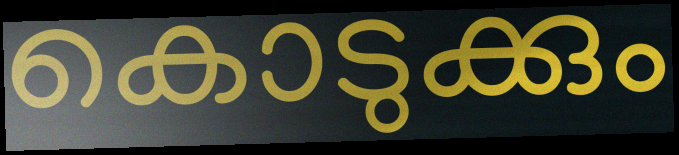
കൊടുക്കും